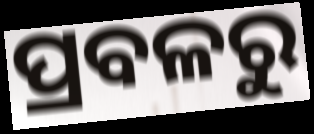
ପ୍ରବଳରୁ